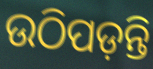
ଉଠିପଡ଼ନ୍ତି